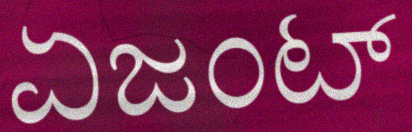
ಏಜಂಟ್